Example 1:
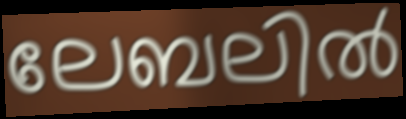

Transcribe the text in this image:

ലേബലിൽ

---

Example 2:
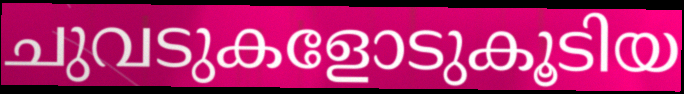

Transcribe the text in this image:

ചുവടുകളോടുകൂടിയ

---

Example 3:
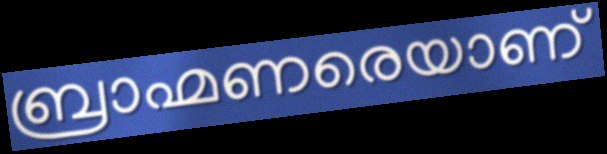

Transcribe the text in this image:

ബ്രാഹ്മണരെയാണ്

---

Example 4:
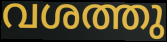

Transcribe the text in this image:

വശത്തു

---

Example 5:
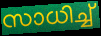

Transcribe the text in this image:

സാധിച്ച്